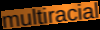
multiracial